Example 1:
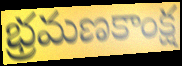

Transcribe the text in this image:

భ్రమణకాంక్ష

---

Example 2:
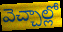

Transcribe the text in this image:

వెచ్చాల్లో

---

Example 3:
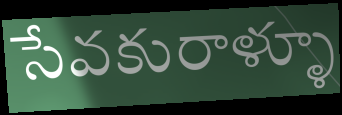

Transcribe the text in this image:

సేవకురాళ్ళూ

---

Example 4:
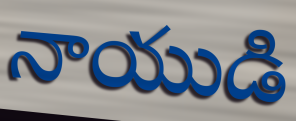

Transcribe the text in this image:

నాయుడి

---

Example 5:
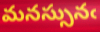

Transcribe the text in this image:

మనస్సునఁ